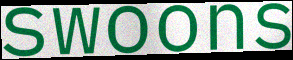
swoons